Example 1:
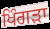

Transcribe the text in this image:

ਖਿੰਗੜਾ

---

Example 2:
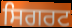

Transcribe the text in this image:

ਸਿਗਰਟ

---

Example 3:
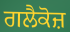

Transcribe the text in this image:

ਗਲੈਕੋਜ਼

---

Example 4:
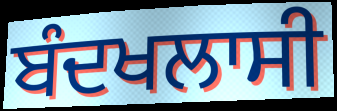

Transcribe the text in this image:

ਬੰਦਖਲਾਸੀ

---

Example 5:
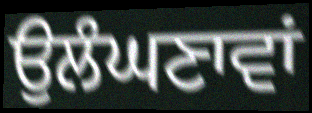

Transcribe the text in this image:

ਉਲੰਘਣਾਵਾਂ